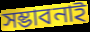
সম্ভাবনাই